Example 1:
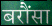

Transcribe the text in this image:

बरौंसा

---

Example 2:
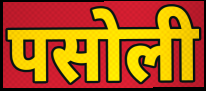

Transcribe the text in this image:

पसोली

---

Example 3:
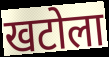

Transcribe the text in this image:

खटोला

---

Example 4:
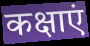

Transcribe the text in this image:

कक्षाएं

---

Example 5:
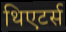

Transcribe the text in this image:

थिएटर्स